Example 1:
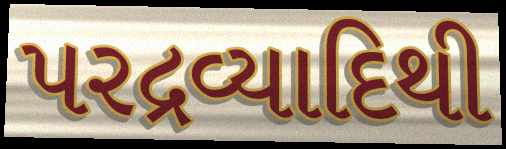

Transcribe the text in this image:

પરદ્રવ્યાદિથી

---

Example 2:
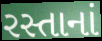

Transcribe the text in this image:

રસ્તાનાં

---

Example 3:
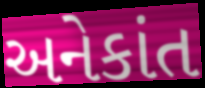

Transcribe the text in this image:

અનેકાંત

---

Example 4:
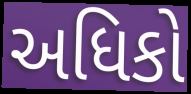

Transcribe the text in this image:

અધિકો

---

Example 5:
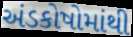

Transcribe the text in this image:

અંડકોષોમાંથી